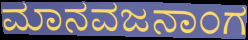
ಮಾನವಜನಾಂಗ